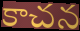
కాచన